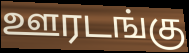
ஊரடங்கு